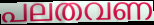
പലതവണ